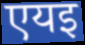
एयइ